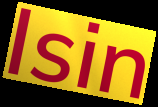
Isin